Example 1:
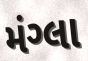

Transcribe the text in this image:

મંગ્લા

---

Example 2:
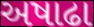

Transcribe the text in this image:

અષાઢા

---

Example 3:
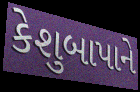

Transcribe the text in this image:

કેશુબાપાને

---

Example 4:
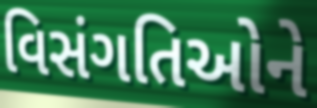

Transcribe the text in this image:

વિસંગતિઓને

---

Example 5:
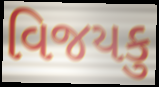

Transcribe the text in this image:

વિજયકુ